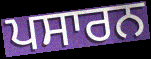
ਪਸਾਰਨ